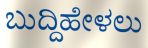
ಬುದ್ದಿಹೇಳಲು